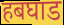
हबघाड